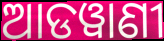
ଆଡୱାଣୀ